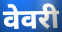
वेवरी